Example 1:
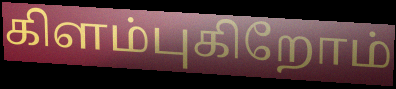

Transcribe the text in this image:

கிளம்புகிறோம்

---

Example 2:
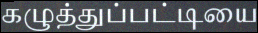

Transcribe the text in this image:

கழுத்துப்பட்டியை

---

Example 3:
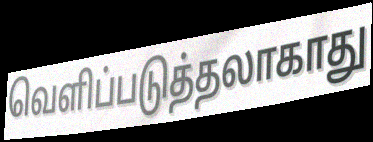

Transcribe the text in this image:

வெளிப்படுத்தலாகாது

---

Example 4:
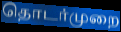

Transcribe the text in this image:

தொடர்முறை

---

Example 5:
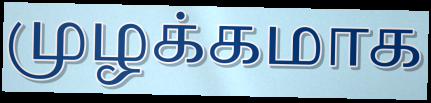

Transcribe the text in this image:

முழக்கமாக